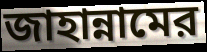
জাহান্নামের